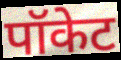
पॉकेट